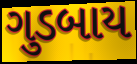
ગુડબાય